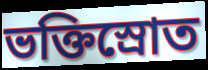
ভক্তিস্রোত